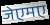
जेएमए